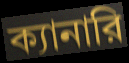
ক্যানারি